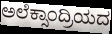
ಅಲೆಕ್ಸಾಂದ್ರಿಯದ